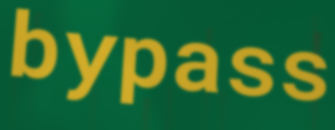
bypass